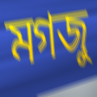
মগজু